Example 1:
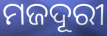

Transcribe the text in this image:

ମଜଦୂରୀ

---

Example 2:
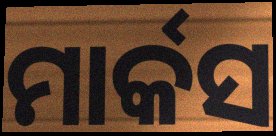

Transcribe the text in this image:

ମାର୍କସ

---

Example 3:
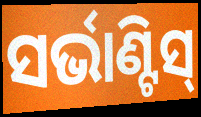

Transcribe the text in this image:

ସର୍ଭାଣ୍ଟିସ୍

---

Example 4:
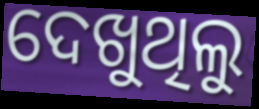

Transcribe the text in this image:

ଦେଖୁଥିଲୁ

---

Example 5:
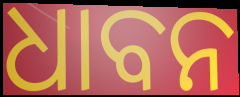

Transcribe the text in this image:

ଧାବନ